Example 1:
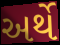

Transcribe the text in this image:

અર્થે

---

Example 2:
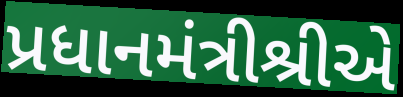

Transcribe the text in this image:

પ્રધાનમંત્રીશ્રીએ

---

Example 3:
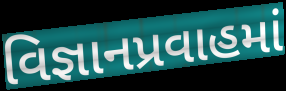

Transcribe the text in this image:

વિજ્ઞાનપ્રવાહમાં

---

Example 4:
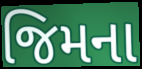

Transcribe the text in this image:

જિમના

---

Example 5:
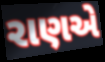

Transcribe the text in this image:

રાણએ